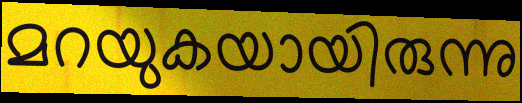
മറയുകയായിരുന്നു